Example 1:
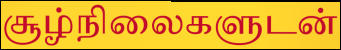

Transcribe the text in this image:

சூழ்நிலைகளுடன்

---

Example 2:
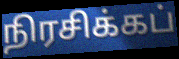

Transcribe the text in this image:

நிரசிக்கப்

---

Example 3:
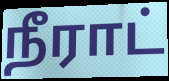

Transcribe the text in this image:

நீராட்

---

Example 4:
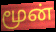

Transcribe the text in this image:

மூன்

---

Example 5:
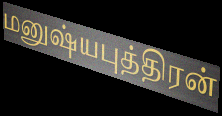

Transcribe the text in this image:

மனுஷ்யபுத்திரன்